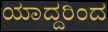
ಯಾದ್ದರಿಂದ